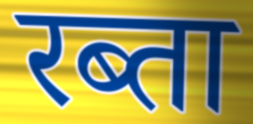
रब्ता